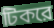
টিকরে